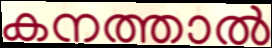
കനത്താൽ